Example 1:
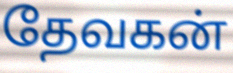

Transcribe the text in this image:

தேவகன்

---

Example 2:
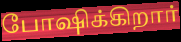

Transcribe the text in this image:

போஷிக்கிறார்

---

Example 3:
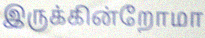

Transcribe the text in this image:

இருக்கின்றோமா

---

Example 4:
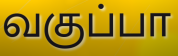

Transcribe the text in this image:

வகுப்பா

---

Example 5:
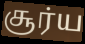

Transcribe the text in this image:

சூர்ய